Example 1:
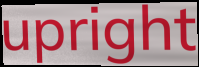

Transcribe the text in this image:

upright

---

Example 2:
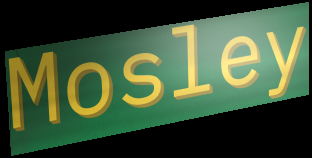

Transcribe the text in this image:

Mosley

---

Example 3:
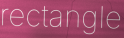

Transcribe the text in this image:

rectangle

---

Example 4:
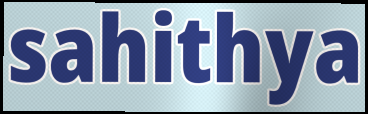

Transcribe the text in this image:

sahithya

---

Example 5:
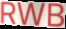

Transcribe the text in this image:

RWB